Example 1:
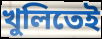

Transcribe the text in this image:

খুলিতেই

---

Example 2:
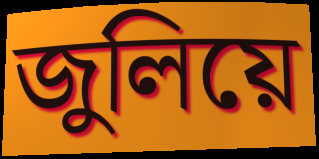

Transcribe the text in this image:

জুলিয়ে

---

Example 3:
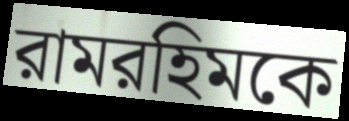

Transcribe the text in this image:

রামরহিমকে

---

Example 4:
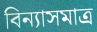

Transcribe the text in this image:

বিন্যাসমাত্র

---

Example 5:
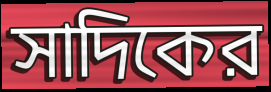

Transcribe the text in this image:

সাদিকের